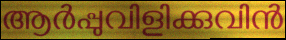
ആർപ്പുവിളിക്കുവിൻ